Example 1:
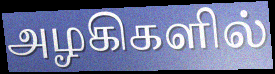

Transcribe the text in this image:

அழகிகளில்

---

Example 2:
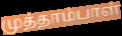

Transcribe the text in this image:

முத்தாம்பாள்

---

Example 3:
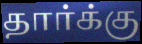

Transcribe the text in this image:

தார்க்கு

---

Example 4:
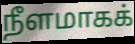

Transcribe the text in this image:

நீளமாகக்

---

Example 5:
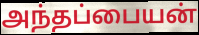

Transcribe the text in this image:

அந்தப்பையன்